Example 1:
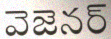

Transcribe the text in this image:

వెజెనర్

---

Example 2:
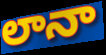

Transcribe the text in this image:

లానా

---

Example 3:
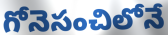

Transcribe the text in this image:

గోనెసంచిలోనే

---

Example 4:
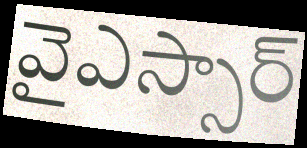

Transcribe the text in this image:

వైఎస్సార్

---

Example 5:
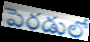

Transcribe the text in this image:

పెరడులో